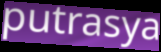
putrasya